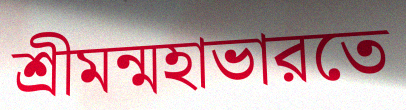
শ্রীমন্মহাভারতে